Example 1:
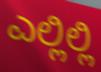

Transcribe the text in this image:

ಎಲ್ಲಿಲ್ಲಿ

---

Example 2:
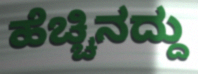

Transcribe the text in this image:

ಹೆಚ್ಚಿನದ್ದು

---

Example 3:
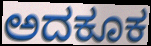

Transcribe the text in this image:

ಅದಕೂಕ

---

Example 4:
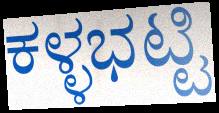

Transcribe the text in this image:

ಕಳ್ಳಭಟ್ಟಿ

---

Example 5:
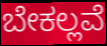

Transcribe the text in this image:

ಬೇಕಲ್ಲವೆ